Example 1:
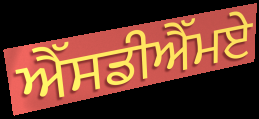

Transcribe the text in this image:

ਐੱਸਡੀਐੱਮਏ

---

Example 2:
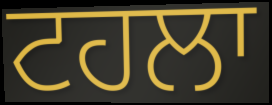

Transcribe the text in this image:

ਟਹਲਾ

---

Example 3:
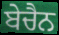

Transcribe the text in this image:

ਬੇਚੈਨ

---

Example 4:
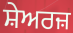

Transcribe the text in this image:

ਸ਼ੇਅਰਜ਼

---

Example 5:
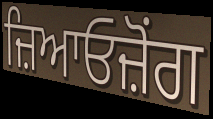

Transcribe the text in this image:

ਜ਼ਿਆਓਜ਼ੋਂਗ